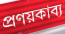
প্রণয়কাব্য